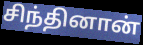
சிந்தினான்